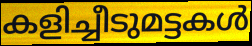
കളിച്ചീടുമട്ടകൾ